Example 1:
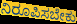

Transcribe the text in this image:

ನಿರೂಪಿಸಬೇಕು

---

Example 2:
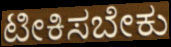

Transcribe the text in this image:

ಟೀಕಿಸಬೇಕು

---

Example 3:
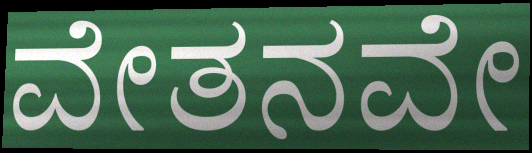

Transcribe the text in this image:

ವೇತನವೇ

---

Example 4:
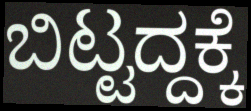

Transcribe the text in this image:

ಬಿಟ್ಟದ್ದಕ್ಕೆ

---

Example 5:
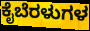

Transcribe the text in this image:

ಕೈಬೆರಳುಗಳ